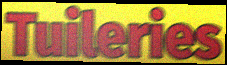
Tuileries